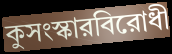
কুসংস্কারবিরোধী